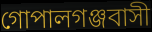
গোপালগঞ্জবাসী